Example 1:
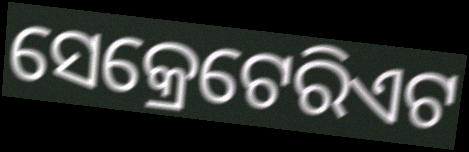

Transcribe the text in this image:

ସେକ୍ରେଟେରିଏଟ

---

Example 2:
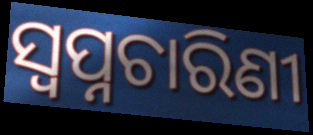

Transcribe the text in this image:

ସ୍ୱପ୍ନଚାରିଣୀ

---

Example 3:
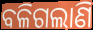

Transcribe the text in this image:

ବଳିଗଲାଣି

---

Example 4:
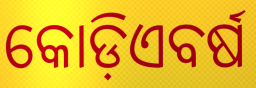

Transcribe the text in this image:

କୋଡ଼ିଏବର୍ଷ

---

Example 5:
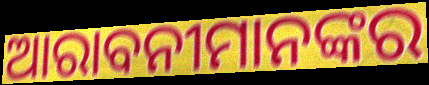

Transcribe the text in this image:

ଆରାବନୀମାନଙ୍କର